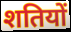
शतियों